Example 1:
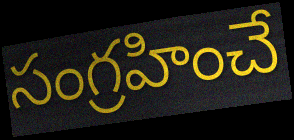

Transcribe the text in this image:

సంగ్రహించే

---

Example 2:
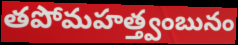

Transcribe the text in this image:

తపోమహత్త్వంబునం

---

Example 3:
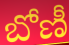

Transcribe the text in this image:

బోణీ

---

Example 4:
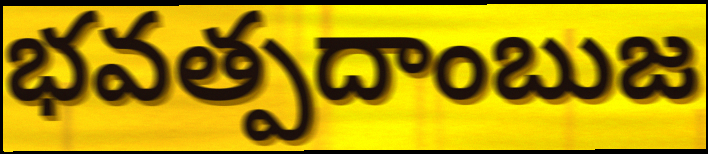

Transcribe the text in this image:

భవత్పదాంబుజ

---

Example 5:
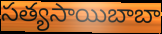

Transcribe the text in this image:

సత్యసాయిబాబా